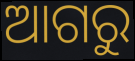
ଆଗରୁ